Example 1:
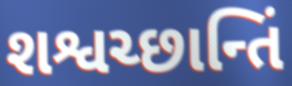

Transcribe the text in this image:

શશ્વચ્છાન્તિં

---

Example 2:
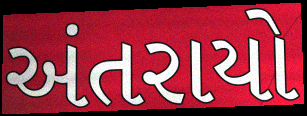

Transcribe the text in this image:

અંતરાયો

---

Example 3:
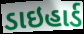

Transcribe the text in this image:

ડાઇહાર્ડ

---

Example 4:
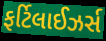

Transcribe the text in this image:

ફર્ટિલાઈઝર્સ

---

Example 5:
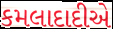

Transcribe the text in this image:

કમલાદાદીએ